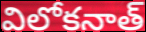
విలోకనాత్